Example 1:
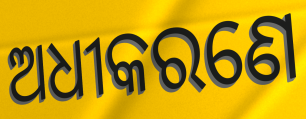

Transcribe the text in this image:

ଅଧୀକରଣେ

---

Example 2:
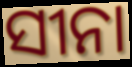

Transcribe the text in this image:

ସୀନା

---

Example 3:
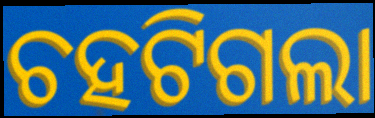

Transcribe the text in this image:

ଚହଟିଗଲା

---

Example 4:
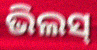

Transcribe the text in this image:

ଭିଲସ୍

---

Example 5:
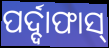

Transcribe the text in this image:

ପର୍ଦ୍ଦାଫାସ୍